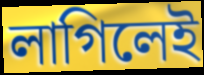
লাগিলেই